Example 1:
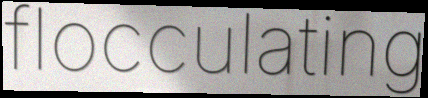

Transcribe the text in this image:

flocculating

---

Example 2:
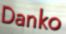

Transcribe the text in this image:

Danko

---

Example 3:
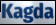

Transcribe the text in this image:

Kagda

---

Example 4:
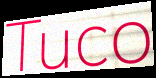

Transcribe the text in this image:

Tuco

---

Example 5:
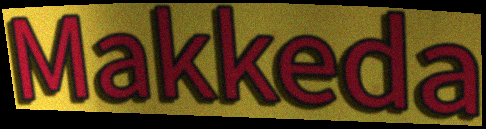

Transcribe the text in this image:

Makkeda